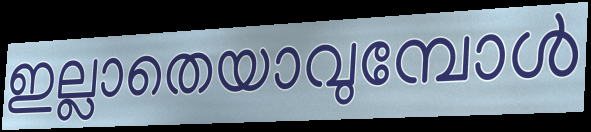
ഇല്ലാതെയാവുമ്പോൾ